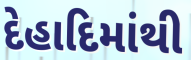
દેહાદિમાંથી